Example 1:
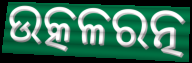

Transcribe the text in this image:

ଉତ୍କଳରତ୍ନ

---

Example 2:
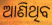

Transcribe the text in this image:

ଆଣିଥିବ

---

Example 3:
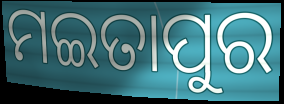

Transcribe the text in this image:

ମଇତାପୁର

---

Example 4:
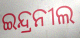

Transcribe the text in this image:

ଇନ୍ଦ୍ରନୀଲ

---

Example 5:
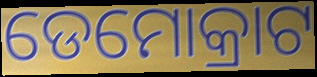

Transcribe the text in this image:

ଡେମୋକ୍ରାଟ